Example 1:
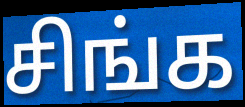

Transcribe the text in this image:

சிங்க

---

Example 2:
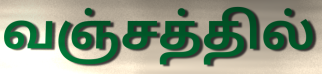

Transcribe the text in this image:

வஞ்சத்தில்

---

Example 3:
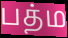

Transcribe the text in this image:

பத்ம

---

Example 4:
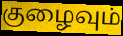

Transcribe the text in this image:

குழைவும்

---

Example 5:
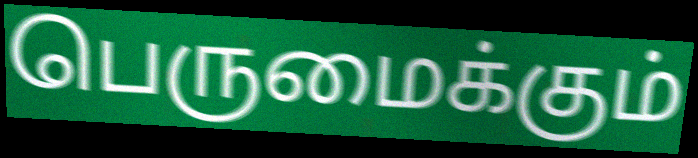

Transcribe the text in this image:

பெருமைக்கும்